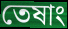
তেষাং